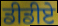
ਡੀਡੀਏ